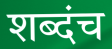
शब्दंच